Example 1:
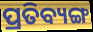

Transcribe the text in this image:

ପ୍ରତିବ୍ୟଙ୍ଗ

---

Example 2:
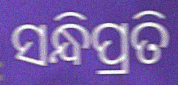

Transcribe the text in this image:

ସନ୍ଧିପ୍ରତି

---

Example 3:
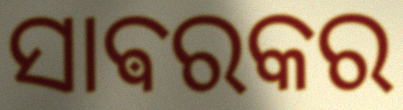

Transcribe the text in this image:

ସାଵରକର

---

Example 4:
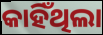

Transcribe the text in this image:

କାହିଁଥିଲା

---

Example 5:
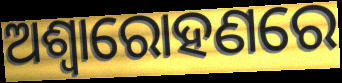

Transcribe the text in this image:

ଅଶ୍ୱାରୋହଣରେ